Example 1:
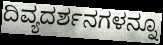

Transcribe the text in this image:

ದಿವ್ಯದರ್ಶನಗಳನ್ನೂ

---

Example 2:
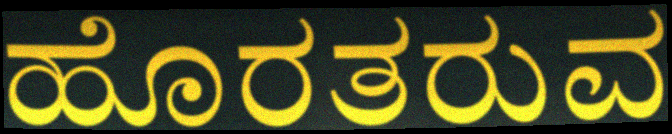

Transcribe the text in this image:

ಹೊರತರುವ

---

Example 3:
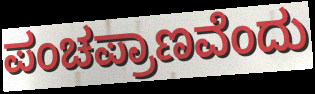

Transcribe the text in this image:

ಪಂಚಪ್ರಾಣವೆಂದು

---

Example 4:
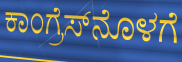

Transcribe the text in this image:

ಕಾಂಗ್ರೆಸ್‌ನೊಳಗೆ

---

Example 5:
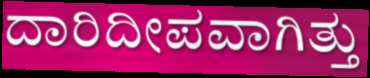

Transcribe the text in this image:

ದಾರಿದೀಪವಾಗಿತ್ತು